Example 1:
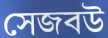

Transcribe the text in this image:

সেজবউ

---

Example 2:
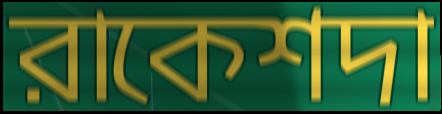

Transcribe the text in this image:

রাকেশদা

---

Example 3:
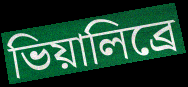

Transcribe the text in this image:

ভিয়ালিব্রে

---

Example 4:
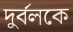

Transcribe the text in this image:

দুর্বলকে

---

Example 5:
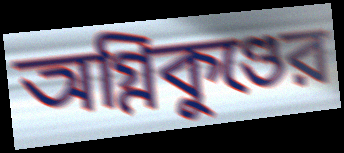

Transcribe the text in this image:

অগ্নিকুণ্ডের